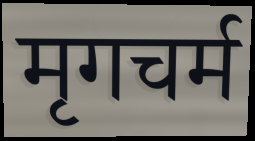
मृगचर्म